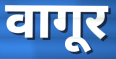
वागूर